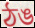
ঠঙ